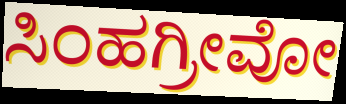
ಸಿಂಹಗ್ರೀವೋ